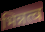
भिन्नत्व